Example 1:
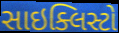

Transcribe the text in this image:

સાઇક્લિસ્ટો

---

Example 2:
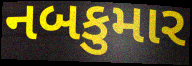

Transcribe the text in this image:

નબકુમાર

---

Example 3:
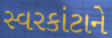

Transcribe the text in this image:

સ્વરકાંટાને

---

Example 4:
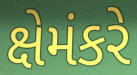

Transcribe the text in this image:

ક્ષેમંકરે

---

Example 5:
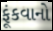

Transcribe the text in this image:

ફૂંકવાનો